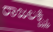
ರಾಜಲಕ್ಷ್ಮಿ